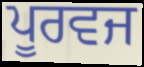
ਪੂਰਵਜ